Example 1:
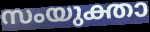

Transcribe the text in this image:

സംയുക്താ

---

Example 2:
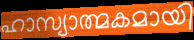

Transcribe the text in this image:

ഹാസ്യാത്മകമായി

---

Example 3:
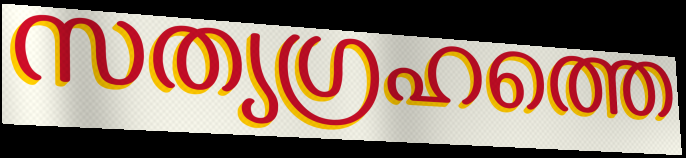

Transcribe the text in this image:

സത്യഗ്രഹത്തെ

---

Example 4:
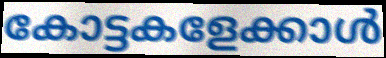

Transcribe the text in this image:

കോട്ടകളേക്കാൾ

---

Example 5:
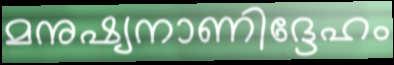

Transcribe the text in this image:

മനുഷ്യനാണിദ്ദേഹം